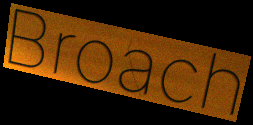
Broach